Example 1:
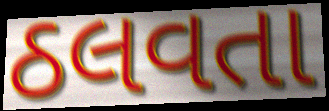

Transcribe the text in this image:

ઠલવતા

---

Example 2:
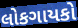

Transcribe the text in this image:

લોકગાયકો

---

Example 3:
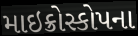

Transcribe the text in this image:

માઇક્રોસ્કોપના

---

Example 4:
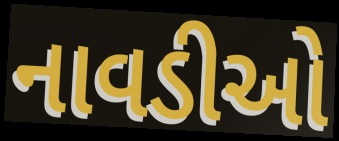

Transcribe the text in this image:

નાવડીઓ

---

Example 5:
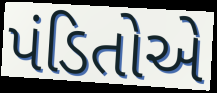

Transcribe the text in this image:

પંડિતોએ